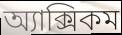
অ্যাক্সিকম